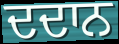
ਦਦਾਨ